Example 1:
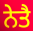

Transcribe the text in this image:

ਨੇਤੈ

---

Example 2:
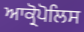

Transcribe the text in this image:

ਆਕ੍ਰੋਪੋਲਿਸ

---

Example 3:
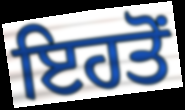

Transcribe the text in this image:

ਇਹਤੋਂ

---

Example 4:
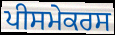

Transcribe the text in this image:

ਪੀਸਮੇਕਰਸ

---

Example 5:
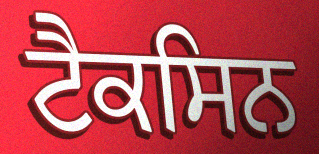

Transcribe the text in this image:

ਟੈਕਸਿਨ